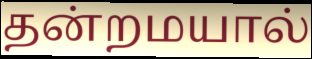
தன்றமயால்